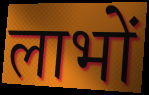
लाभों